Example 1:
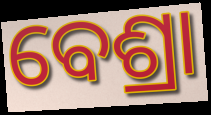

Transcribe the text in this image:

ବେଶ୍ରା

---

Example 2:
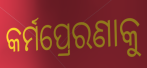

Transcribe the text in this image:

କର୍ମପ୍ରେରଣାକୁ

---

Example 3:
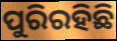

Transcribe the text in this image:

ପୁରିରହିଛି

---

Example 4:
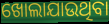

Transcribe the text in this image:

ଖୋଲାଯାଉଥିବା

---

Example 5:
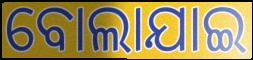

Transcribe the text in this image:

ବୋଲାଯାଇ